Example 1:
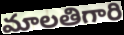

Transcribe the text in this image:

మాలతిగారి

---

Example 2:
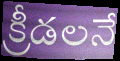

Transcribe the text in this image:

క్రీడలనే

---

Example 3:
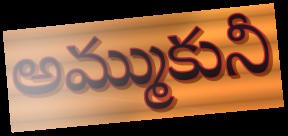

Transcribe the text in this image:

అమ్ముకునీ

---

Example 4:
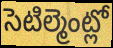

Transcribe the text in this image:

సెటిల్మెంట్లో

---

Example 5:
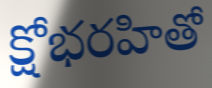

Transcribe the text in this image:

క్షోభరహితో